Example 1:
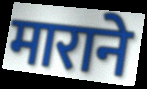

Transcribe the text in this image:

माराने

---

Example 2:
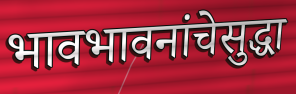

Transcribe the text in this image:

भावभावनांचेसुद्धा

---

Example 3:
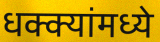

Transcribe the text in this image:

धक्क्यांमध्ये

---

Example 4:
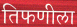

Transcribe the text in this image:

तिफणीला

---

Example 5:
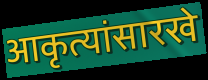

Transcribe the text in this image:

आकृत्यांसारखे